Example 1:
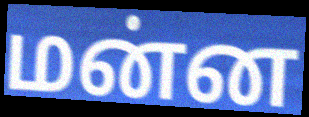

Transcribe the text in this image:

மன்ன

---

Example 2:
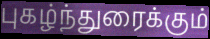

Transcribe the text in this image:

புகழ்ந்துரைக்கும்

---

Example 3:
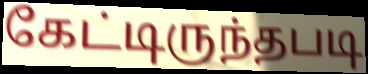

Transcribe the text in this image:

கேட்டிருந்தபடி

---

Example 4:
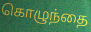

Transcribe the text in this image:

கொழுந்தை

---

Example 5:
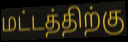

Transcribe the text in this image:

மட்டத்திற்கு